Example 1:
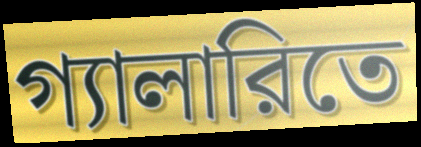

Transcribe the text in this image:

গ্যালারিতে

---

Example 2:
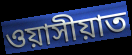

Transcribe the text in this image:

ওয়াসীয়াত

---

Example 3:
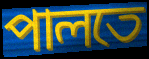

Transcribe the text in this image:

পালতে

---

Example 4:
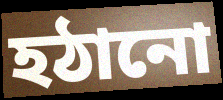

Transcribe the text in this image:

হঠানো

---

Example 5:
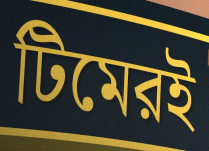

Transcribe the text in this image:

টিমেরই